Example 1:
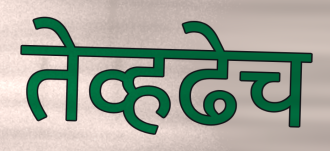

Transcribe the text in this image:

तेव्हढेच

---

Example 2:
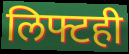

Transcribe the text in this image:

लिफ्टही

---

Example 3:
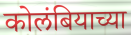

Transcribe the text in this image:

कोलंबियाच्या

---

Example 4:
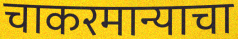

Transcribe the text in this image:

चाकरमान्याचा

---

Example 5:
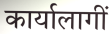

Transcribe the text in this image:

कार्यालागीं